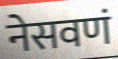
नेसवणं